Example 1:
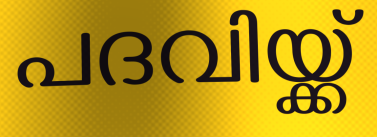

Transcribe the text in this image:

പദവിയ്ക്ക്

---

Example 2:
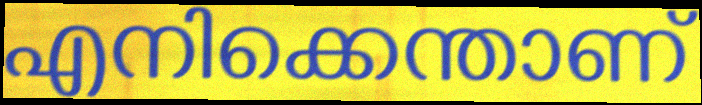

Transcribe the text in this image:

എനിക്കെന്താണ്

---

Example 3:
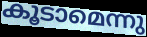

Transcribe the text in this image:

കൂടാമെന്നു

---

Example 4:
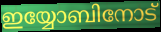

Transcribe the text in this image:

ഇയ്യോബിനോട്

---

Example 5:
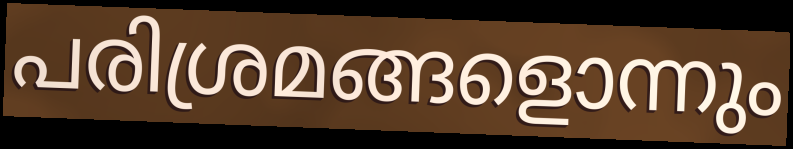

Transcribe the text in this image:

പരിശ്രമങ്ങളൊന്നും